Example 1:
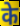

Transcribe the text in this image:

के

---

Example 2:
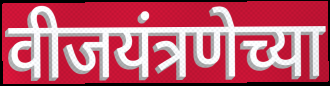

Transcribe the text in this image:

वीजयंत्रणेच्या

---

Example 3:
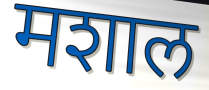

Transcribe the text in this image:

मशाल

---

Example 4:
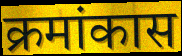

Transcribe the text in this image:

क्रमांकास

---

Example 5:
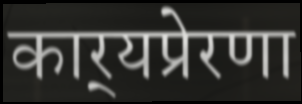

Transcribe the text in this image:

कार्यप्रेरणा